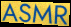
ASMR